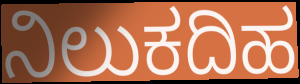
ನಿಲುಕದಿಹ